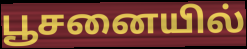
பூசனையில்